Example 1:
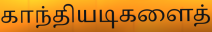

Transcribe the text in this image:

காந்தியடிகளைத்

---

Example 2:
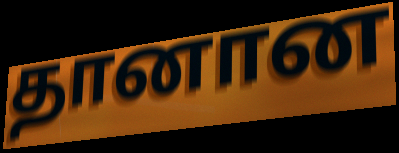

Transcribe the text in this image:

தானான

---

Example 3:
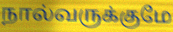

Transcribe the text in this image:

நால்வருக்குமே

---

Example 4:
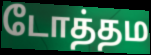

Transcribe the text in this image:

டோத்தம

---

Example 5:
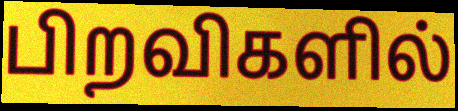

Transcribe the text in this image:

பிறவிகளில்